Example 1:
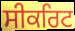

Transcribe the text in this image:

ਸੀਕਰਿਟ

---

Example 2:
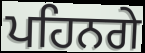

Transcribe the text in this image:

ਪਹਿਨਗੇ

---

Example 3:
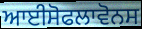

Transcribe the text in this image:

ਆਈਸੋਫਲਾਵੋਨਸ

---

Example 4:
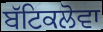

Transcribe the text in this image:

ਬੱਟਿਕਲੋਵਾ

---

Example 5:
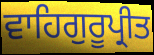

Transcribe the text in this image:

ਵਾਹਿਗੁਰੂਪ੍ਰੀਤ